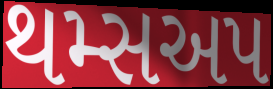
થમ્સઅપ